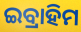
ଇବ୍ରାହିମ